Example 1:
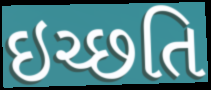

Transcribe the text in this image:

ઇચ્છતિ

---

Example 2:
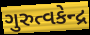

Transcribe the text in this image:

ગુરુત્વકેન્દ્ર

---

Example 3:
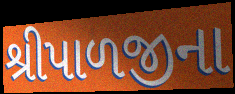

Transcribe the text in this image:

શ્રીપાળજીના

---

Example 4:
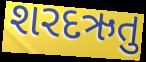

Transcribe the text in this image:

શરદઋતુ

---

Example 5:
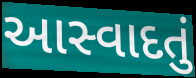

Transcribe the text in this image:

આસ્વાદતું